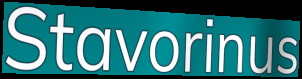
Stavorinus